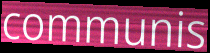
communis